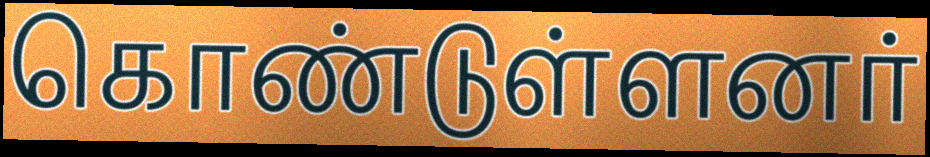
கொண்டுள்ளனர்